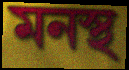
মনস্থ